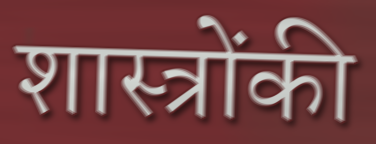
शास्त्रोंकी